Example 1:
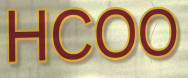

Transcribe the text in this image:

HCOO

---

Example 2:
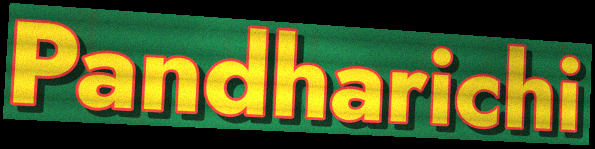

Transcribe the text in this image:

Pandharichi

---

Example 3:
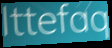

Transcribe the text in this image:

Ittefaq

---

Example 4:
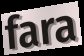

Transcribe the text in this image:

fara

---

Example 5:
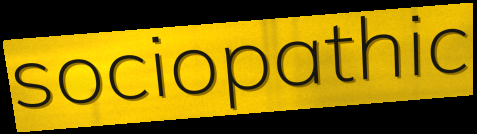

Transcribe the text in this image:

sociopathic